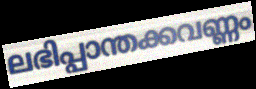
ലഭിപ്പാന്തക്കവണ്ണം